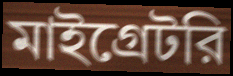
মাইগ্রেটরি